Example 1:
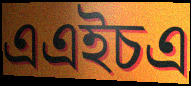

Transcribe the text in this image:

এএইচএ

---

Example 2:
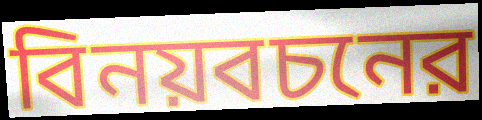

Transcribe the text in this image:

বিনয়বচনের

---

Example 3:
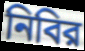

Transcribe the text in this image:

নিবির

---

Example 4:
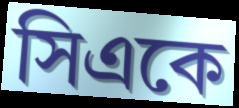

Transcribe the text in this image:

সিএকে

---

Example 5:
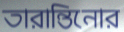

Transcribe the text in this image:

তারান্তিনোর